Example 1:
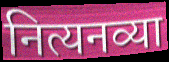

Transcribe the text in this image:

नित्यनव्या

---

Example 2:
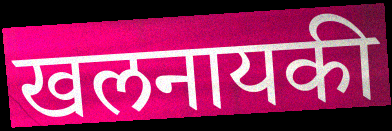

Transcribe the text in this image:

खलनायकी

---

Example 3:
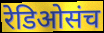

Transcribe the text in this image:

रेडिओसंच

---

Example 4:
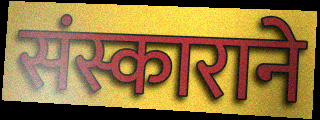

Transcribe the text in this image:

संस्काराने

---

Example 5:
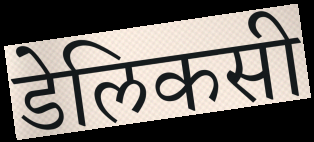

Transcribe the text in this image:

डेलिकसी